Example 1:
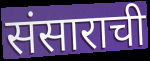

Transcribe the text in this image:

संसाराची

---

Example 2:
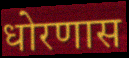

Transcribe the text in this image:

धोरणास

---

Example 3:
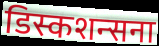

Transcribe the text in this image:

डिस्कशन्सना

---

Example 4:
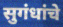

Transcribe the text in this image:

सुगंधांचे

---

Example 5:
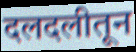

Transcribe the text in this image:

दलदलीतून